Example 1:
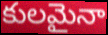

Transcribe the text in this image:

కులమైనా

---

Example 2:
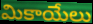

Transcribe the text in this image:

మికాయేలు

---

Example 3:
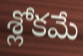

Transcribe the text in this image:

శ్లోకమే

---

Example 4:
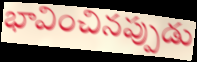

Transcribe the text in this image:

భావించినప్పుడు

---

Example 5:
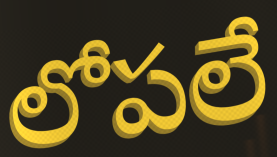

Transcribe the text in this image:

లోపలే